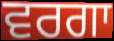
ਵਰਗਾ